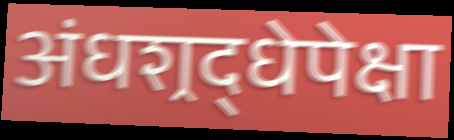
अंधश्रद्धेपेक्षा